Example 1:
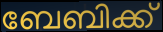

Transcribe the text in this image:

ബേബിക്ക്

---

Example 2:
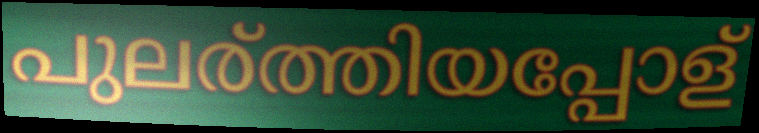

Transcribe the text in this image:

പുലര്ത്തിയപ്പോള്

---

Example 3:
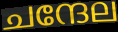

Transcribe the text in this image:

ചന്ദേല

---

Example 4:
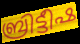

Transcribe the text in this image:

ബ്രിട്ടീഷ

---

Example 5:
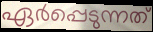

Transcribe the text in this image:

ഏർപ്പെടുന്നത്